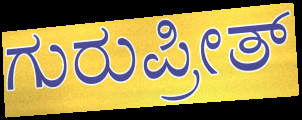
ಗುರುಪ್ರೀತ್